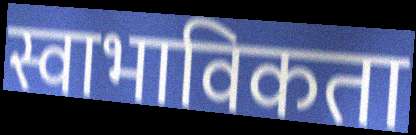
स्वाभाविकता